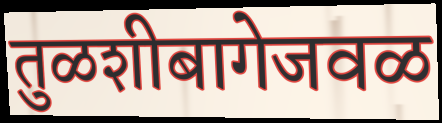
तुळशीबागेजवळ